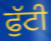
ਫੁੱਟੀ